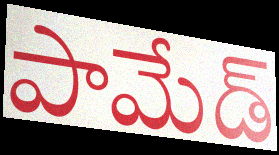
పామేడ్